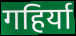
गहिर्या